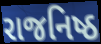
રાજનિષ્ઠ